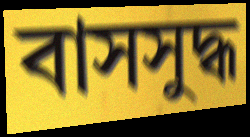
বাসসুদ্ধ